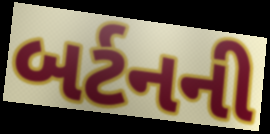
બર્ટનની